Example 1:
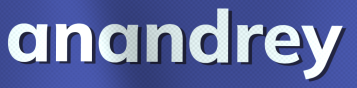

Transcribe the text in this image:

anandrey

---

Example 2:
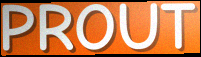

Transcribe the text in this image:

PROUT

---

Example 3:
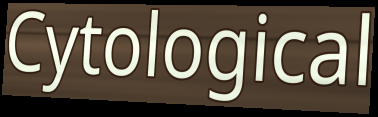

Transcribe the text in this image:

Cytological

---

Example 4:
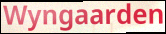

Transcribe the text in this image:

Wyngaarden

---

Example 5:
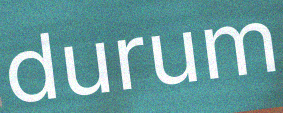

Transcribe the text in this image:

durum